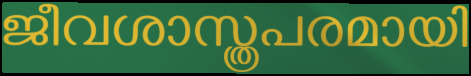
ജീവശാസ്ത്രപരമായി